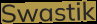
Swastik